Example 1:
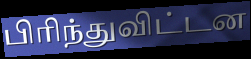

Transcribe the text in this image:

பிரிந்துவிட்டன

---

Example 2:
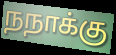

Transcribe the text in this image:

நநாக்கு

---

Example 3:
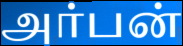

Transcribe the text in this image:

அர்பன்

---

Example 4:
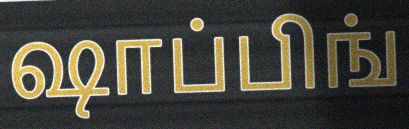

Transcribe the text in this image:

ஷாப்பிங்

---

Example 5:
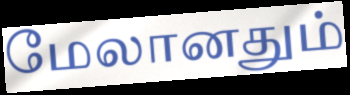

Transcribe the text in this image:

மேலானதும்